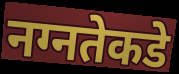
नग्नतेकडे